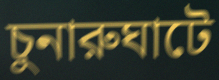
চুনারুঘাটে